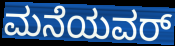
ಮನೆಯವರ್